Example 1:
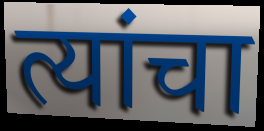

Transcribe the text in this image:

त्यांचा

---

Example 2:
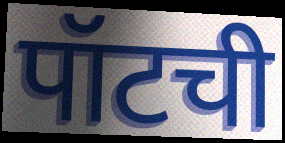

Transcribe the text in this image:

पॉटची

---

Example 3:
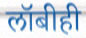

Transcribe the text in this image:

लॉबीही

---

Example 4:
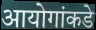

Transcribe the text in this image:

आयोगांकडे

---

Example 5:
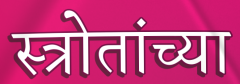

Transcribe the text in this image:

स्त्रोतांच्या